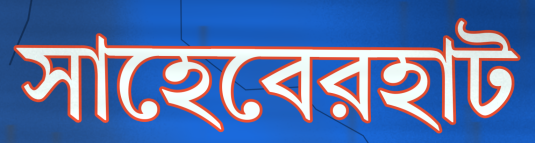
সাহেবেরহাট